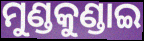
ମୁଣ୍ଡକୁଣ୍ଡାଇ